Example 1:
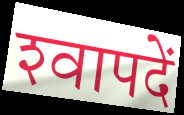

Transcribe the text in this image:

श्वापदें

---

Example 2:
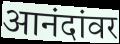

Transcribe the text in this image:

आनंदांवर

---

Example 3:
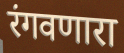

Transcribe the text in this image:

रंगवणारा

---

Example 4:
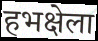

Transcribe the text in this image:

हभक्षेला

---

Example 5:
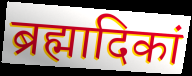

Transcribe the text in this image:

ब्रह्मादिकां